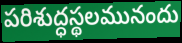
పరిశుద్ధస్థలమునందు